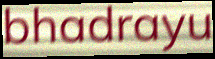
bhadrayu